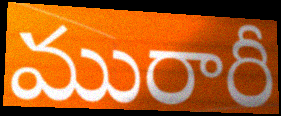
మురారీ